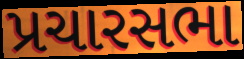
પ્રચારસભા